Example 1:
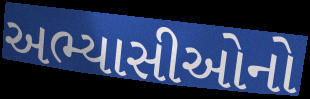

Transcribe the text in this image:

અભ્યાસીઓનો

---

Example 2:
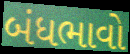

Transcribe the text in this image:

બંધભાવો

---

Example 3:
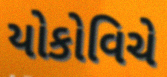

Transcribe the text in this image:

યોકોવિચે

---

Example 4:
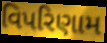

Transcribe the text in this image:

વિપરિણામ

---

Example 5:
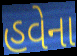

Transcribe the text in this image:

હવેના